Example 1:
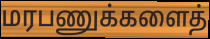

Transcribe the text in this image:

மரபணுக்களைத்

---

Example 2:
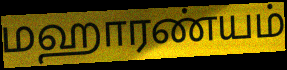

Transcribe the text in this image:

மஹாரண்யம்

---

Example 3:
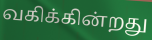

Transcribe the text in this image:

வகிக்கின்றது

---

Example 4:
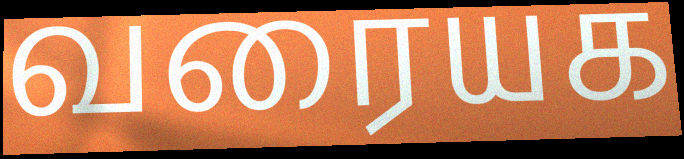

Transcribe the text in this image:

வரையக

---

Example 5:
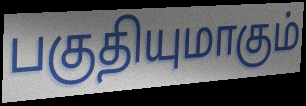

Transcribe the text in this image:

பகுதியுமாகும்